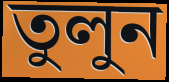
তুলুন